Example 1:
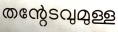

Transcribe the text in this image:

തന്റേടവുമുള്ള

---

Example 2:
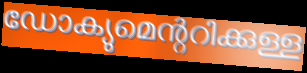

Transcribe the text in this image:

ഡോക്യുമെന്ററിക്കുള്ള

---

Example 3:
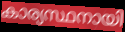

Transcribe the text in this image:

കാര്യസ്ഥനായി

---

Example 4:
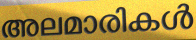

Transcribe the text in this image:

അലമാരികൾ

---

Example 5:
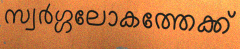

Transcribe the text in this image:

സ്വർഗ്ഗലോകത്തേക്ക്